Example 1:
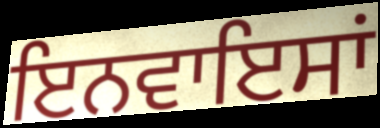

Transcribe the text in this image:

ਇਨਵਾਇਸਾਂ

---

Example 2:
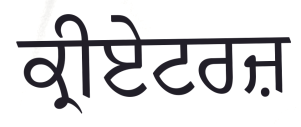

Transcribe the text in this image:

ਕ੍ਰੀਏਟਰਜ਼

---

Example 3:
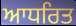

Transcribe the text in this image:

ਆਧਰਿਤ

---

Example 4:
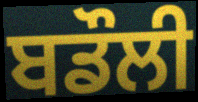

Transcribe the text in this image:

ਬਡੌਲੀ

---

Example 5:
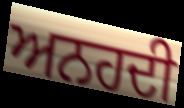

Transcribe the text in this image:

ਅਨਹਦੀ